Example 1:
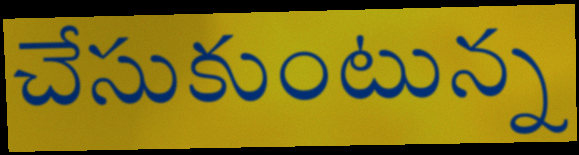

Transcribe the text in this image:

చేసుకుంటున్న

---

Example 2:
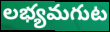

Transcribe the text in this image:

లభ్యమగుట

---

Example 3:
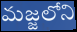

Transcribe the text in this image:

మజ్జలోని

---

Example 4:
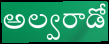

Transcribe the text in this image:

అల్వరాడో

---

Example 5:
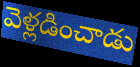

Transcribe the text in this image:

వెళ్లడించాడు